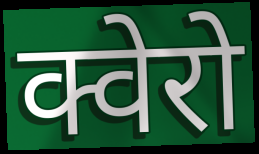
क्वेरो